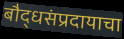
बौद्धसंप्रदायाचा